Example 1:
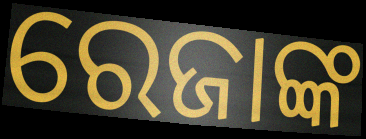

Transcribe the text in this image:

ରେଜାଙ୍କ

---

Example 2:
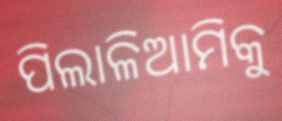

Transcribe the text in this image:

ପିଲାଳିଆମିକୁ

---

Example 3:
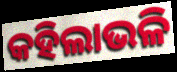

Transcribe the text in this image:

କହିଲାଭଳି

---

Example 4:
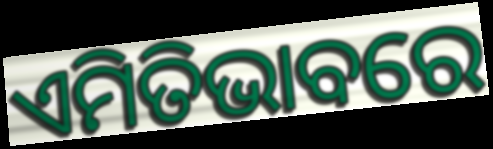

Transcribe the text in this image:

ଏମିତିଭାବରେ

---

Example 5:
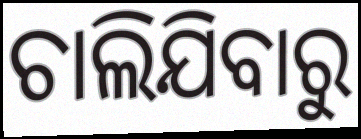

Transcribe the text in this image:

ଚାଲିଯିବାରୁ